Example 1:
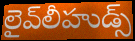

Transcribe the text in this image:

లైవ్‌లీహుడ్స్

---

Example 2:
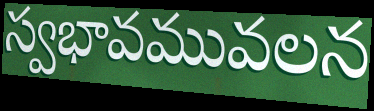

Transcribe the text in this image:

స్వభావమువలన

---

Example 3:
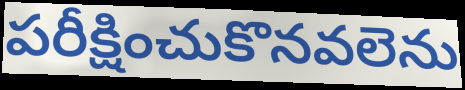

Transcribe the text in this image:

పరీక్షించుకొనవలెను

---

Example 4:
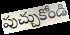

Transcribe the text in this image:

పుచ్చుకోండి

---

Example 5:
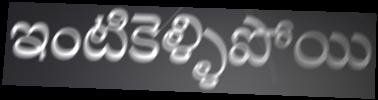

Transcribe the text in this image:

ఇంటికెళ్ళిపోయి